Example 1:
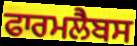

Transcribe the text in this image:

ਫਾਰਮਲੈਬਸ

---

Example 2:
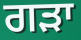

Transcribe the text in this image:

ਗੜਾ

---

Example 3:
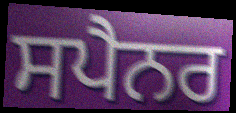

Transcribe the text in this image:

ਸਪੈਨਰ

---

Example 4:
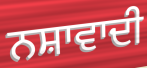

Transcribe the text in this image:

ਨਸ਼ਾਵਾਦੀ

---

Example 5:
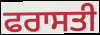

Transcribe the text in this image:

ਫਰਾਸਤੀ